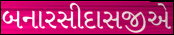
બનારસીદાસજીએ